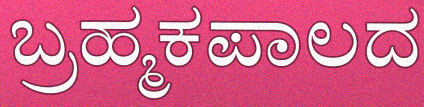
ಬ್ರಹ್ಮಕಪಾಲದ